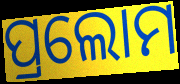
ପ୍ରଲୋମ